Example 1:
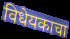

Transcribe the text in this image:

विधेयकाचा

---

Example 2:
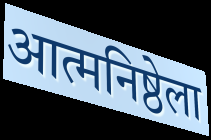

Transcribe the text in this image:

आत्मनिष्ठेला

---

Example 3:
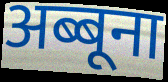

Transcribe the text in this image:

अब्बूना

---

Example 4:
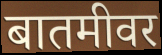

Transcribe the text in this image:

बातमीवर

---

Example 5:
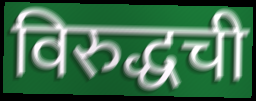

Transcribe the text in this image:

विरुद्धची